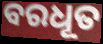
ବରଧୂତ